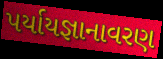
પર્યાયજ્ઞાનાવરણ